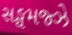
સઙ્ઘમજ્ઝે